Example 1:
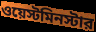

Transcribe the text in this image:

ওয়েস্টমিনস্টার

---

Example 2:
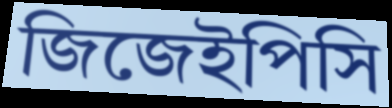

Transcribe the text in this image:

জিজেইপিসি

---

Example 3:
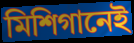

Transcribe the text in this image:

মিশিগানেই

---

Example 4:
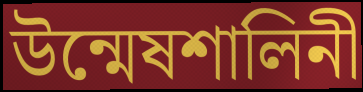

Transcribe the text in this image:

উন্মেষশালিনী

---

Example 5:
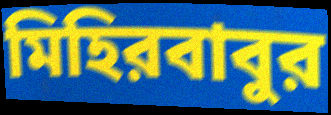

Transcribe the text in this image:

মিহিরবাবুর